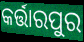
କର୍ତ୍ତାରପୁର